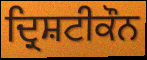
ਦ੍ਰਿਸ਼ਟੀਕੌਨ